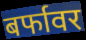
बर्फावर